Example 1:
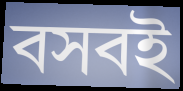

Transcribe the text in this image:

বসবই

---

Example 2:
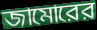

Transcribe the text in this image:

জামোরের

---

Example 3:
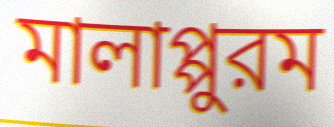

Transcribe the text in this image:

মালাপ্পুরম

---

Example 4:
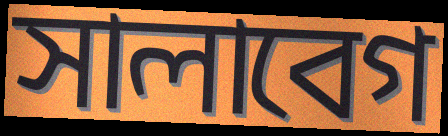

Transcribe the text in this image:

সালাবেগ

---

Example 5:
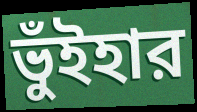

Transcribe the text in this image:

ভুঁইহার